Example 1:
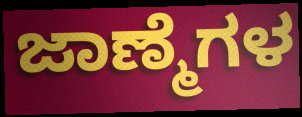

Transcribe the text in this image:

ಜಾಣ್ಮೆಗಳ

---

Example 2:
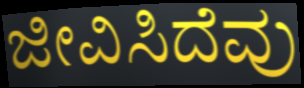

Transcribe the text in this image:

ಜೀವಿಸಿದೆವು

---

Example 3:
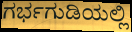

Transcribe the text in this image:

ಗರ್ಭಗುಡಿಯಲ್ಲಿ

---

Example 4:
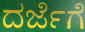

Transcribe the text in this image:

ದರ್ಜೆಗೆ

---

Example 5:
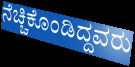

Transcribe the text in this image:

ನೆಚ್ಚಿಕೊಂಡಿದ್ದವರು